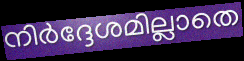
നിർദ്ദേശമില്ലാതെ